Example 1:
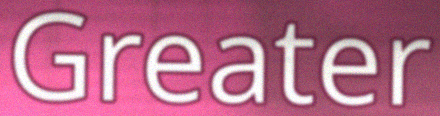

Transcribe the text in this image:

Greater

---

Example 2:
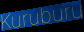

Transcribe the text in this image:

Kuruburu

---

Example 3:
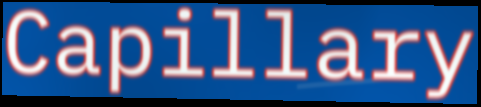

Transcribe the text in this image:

Capillary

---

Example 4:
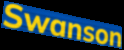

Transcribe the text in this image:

Swanson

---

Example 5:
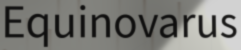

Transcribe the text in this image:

Equinovarus